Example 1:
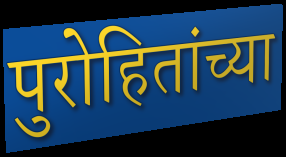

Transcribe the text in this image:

पुरोहितांच्या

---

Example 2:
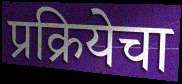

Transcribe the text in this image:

प्रक्रियेचा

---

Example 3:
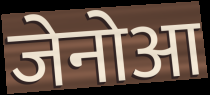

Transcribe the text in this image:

जेनोआ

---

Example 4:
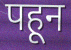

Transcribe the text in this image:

पहून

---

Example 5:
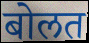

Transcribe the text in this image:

बोलत